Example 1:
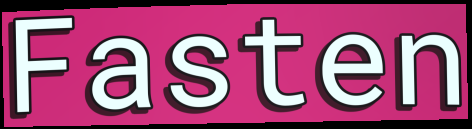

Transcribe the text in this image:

Fasten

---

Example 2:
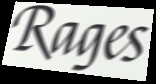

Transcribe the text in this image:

Rages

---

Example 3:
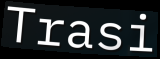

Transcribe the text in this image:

Trasi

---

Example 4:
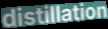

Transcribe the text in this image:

distillation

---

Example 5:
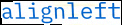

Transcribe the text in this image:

alignleft